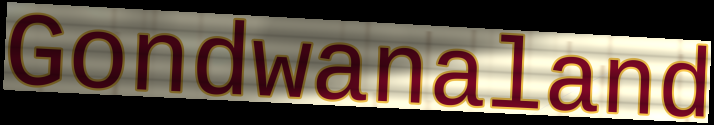
Gondwanaland